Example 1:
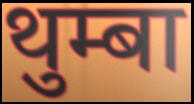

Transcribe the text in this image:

थुम्बा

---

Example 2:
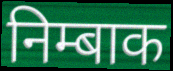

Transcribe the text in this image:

निम्बाक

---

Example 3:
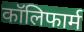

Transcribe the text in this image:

कॉलिफार्म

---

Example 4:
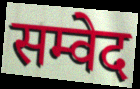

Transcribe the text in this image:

सम्वेद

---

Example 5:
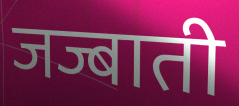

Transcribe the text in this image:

जज्‍बाती